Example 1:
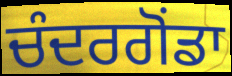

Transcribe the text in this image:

ਚੰਦਰਗੋਂਡਾ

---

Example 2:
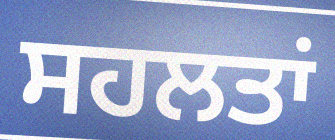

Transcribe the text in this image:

ਸਹਲਤਾਂ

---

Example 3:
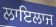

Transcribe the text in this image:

ਲਾਇਲਾਜ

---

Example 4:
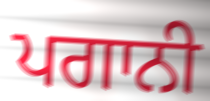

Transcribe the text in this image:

ਪਗਾਨੀ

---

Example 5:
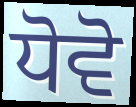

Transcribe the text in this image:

ਧੋਵੋ